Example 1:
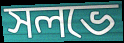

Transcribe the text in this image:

সলভে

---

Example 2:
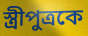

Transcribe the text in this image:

স্ত্রীপুত্রকে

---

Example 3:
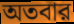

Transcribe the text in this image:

অতবার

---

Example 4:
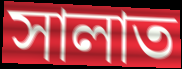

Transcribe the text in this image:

সালাত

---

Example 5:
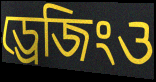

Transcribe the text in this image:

ড্রেজিংও